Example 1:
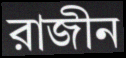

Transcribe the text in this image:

রাজীন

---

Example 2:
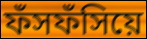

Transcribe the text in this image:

ফঁসফঁসিয়ে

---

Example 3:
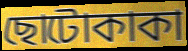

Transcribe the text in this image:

ছোটোকাকা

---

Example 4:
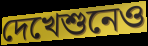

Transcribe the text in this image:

দেখেশুনেও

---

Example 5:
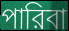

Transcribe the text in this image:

পারিবা